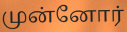
முன்னோர்